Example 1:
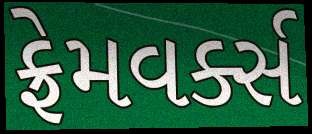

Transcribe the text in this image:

ફ્રેમવર્ક્સ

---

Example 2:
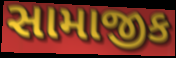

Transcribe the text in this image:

સામાજીક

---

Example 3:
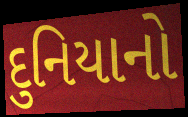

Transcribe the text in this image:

દુનિયાનો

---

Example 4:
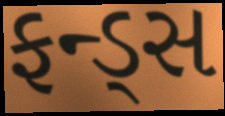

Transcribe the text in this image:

ફન્ડ્સ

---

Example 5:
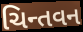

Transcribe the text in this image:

ચિન્તવન